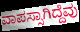
ವಾಪಸ್ಸಾಗಿದ್ದೆವು